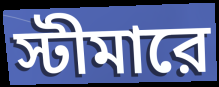
স্টীমারে